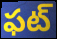
ఫట్